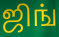
ஜிங்